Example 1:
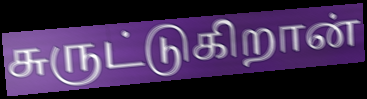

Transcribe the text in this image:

சுருட்டுகிறான்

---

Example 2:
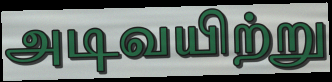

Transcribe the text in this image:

அடிவயிற்று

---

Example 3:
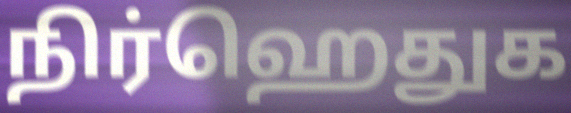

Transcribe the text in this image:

நிர்ஹெதுக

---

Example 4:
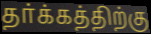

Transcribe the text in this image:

தர்க்கத்திற்கு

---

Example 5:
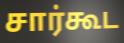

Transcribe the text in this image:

சார்கூட